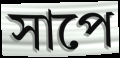
সাপে